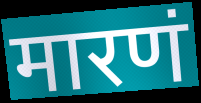
मारणं